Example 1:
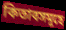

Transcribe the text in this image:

কিতাবসমূহে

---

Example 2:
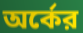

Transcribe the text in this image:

অর্কের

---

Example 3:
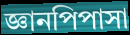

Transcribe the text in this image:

জ্ঞানপিপাসা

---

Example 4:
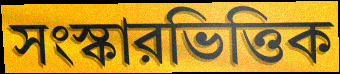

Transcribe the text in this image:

সংস্কারভিত্তিক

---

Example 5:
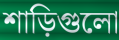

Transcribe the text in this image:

শাড়িগুলো